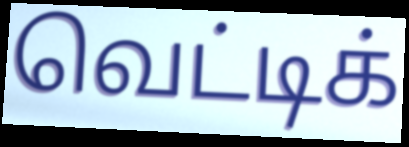
வெட்டிக்